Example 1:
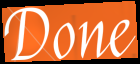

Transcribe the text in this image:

Done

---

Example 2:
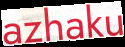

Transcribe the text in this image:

azhaku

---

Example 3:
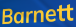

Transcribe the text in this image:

Barnett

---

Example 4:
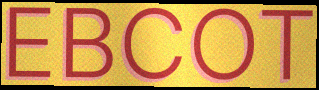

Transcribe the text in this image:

EBCOT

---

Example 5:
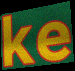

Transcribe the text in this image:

ke